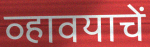
व्हावयाचें